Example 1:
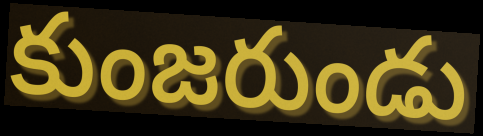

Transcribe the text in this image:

కుంజరుండు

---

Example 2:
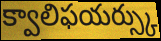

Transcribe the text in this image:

క్వాలిఫయర్స్కు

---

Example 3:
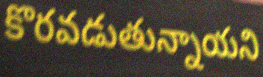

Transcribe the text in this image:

కొరవడుతున్నాయని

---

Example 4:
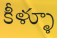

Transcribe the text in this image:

కీళ్ళూ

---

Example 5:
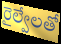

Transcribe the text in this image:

రైల్వేలతో